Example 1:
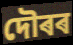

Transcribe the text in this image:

দৌৰৰ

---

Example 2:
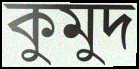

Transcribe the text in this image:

কুমুদ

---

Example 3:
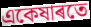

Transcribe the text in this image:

একেষাৰতে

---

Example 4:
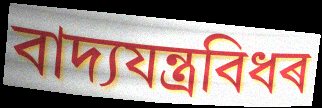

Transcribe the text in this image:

বাদ্যযন্ত্ৰবিধৰ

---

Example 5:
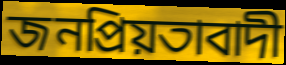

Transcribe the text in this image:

জনপ্ৰিয়তাবাদী